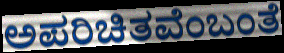
ಅಪರಿಚಿತವೆಂಬಂತೆ